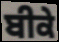
ਬੀਕੇ